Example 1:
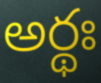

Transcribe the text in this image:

అర్థః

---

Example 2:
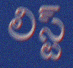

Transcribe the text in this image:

లిస్ట్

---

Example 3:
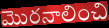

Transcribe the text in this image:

మొరనాలించి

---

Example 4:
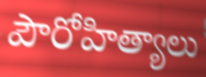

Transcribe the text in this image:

పౌరోహిత్యాలు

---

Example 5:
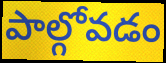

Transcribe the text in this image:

పాల్గోవడం